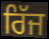
ਰਿੱਜ